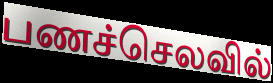
பணச்செலவில்